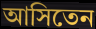
আসিতেন